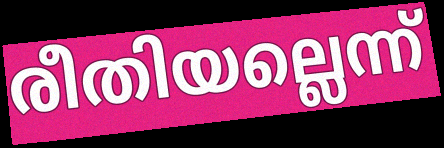
രീതിയല്ലെന്ന്